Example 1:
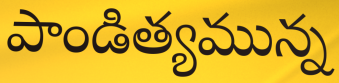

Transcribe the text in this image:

పాండిత్యమున్న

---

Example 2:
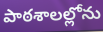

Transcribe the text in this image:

పాఠశాలల్లోను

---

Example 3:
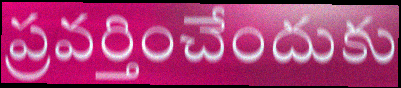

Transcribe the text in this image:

ప్రవర్తించేందుకు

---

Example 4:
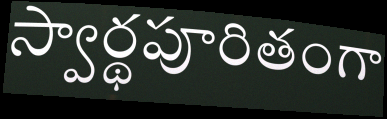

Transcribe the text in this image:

స్వార్థపూరితంగా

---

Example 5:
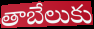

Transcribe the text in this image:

తాబేలుకు